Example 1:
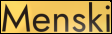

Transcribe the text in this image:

Menski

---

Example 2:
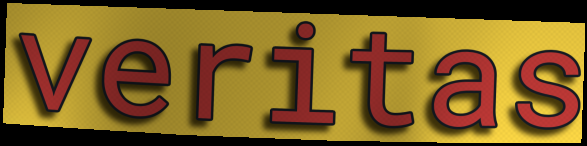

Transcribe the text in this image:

veritas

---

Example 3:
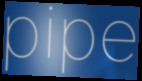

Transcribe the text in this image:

pipe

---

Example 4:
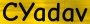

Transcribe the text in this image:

CYadav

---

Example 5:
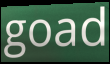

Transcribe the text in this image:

goad